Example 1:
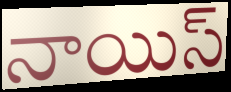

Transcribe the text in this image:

నాయిస్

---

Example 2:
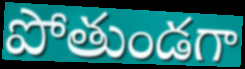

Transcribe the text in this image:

పోతుండగా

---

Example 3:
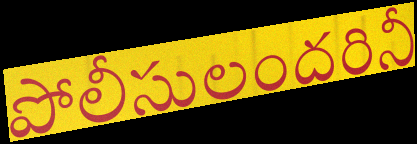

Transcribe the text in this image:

పోలీసులందరినీ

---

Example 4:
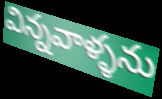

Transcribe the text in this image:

విన్నవాళ్ళను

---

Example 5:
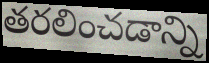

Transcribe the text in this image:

తరలించడాన్ని